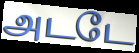
அடடே